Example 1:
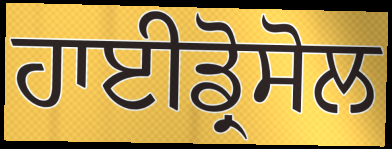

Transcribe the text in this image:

ਹਾਈਡ੍ਰੋਸੋਲ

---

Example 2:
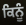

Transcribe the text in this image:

ਕਿਨੂੰ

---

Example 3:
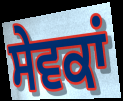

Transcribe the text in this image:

ਸੇਵਕਾਂ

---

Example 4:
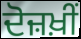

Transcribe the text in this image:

ਦੋਜ਼ਖ਼ੀਂ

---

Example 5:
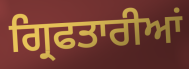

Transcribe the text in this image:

ਗ੍ਰਿਫਤਾਰੀਆਂ